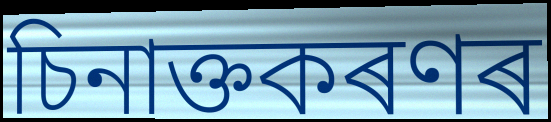
চিনাক্তকৰণৰ